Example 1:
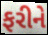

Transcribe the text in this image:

ફરીને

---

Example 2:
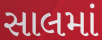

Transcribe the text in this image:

સાલમાં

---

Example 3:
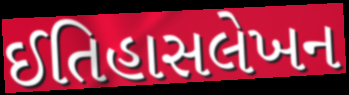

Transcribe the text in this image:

ઈતિહાસલેખન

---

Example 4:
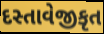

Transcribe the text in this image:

દસ્તાવેજીકૃત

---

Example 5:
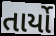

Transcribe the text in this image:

તાર્યો